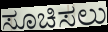
ಸೂಚಿಸಲು